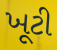
ખૂટી